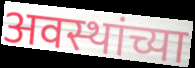
अवस्थांच्या